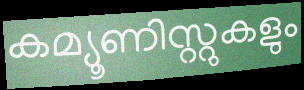
കമ്യൂണിസ്റ്റുകളും